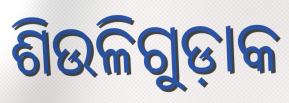
ଶିଉଳିଗୁଡ଼ାକ